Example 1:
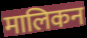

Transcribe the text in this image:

मालिकन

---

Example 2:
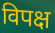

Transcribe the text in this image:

विपक्ष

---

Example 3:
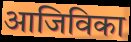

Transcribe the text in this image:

आजिविका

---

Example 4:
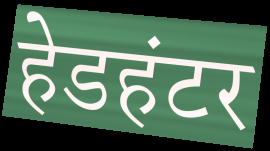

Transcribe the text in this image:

हेडहंटर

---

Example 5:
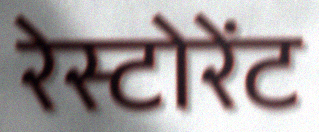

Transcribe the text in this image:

रेस्टोरेंट